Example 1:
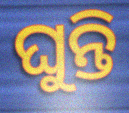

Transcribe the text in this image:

ଘୁନ୍ତି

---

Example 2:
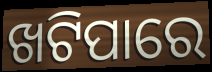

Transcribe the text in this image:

ଖଟିପାରେ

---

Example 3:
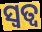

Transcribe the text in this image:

ସ୍ୱତ୍ୱ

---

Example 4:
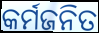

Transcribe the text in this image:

କର୍ମଜନିତ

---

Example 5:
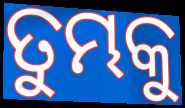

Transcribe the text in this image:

ତୁମ୍ଭକୁ